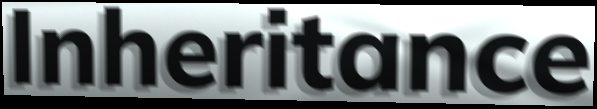
Inheritance